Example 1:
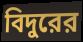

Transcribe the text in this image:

বিদুরের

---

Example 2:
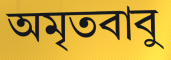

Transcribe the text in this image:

অমৃতবাবু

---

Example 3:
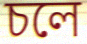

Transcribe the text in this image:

চলে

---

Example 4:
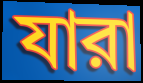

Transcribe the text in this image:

যারা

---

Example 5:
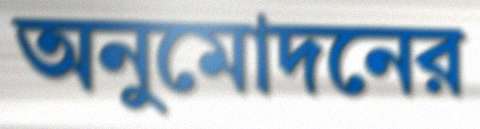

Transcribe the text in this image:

অনুমোদনের